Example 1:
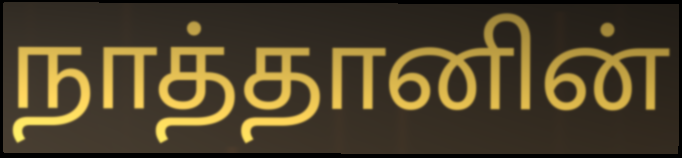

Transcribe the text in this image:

நாத்தானின்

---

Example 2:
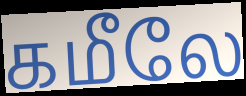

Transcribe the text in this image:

கமீலே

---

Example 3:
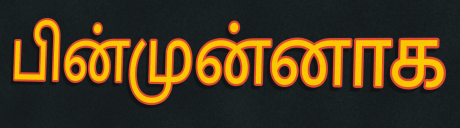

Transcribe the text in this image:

பின்முன்னாக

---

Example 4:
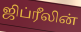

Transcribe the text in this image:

ஜிப்ரீலின்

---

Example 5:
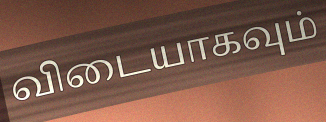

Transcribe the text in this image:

விடையாகவும்